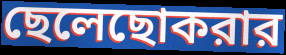
ছেলেছোকরার